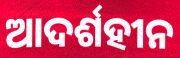
ଆଦର୍ଶହୀନ